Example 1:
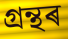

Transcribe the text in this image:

গ্ৰন্থৰ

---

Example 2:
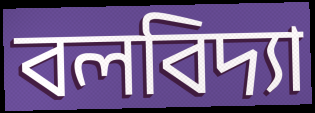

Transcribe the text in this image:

বলবিদ্যা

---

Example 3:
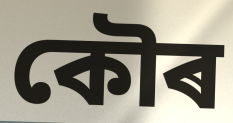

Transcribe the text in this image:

কৌৰ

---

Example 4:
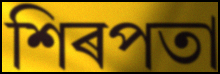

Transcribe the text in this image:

শিৰপতা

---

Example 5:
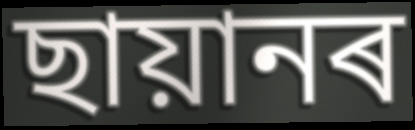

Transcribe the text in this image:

ছায়ানৰ